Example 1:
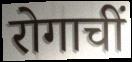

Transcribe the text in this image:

रोगाचीं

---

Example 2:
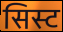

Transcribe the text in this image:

सिस्ट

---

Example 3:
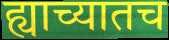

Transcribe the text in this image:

ह्याच्यातच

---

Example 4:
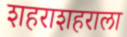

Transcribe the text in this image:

शहराशहराला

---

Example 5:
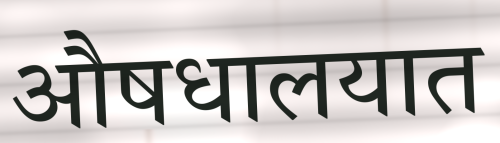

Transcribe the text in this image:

औषधालयात